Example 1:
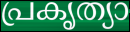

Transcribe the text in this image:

പ്രകൃത്യാ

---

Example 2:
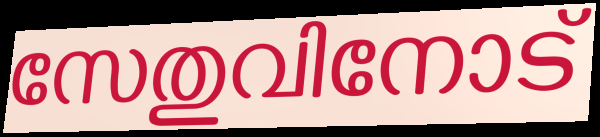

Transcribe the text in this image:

സേതുവിനോട്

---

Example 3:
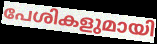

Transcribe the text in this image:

പേശികളുമായി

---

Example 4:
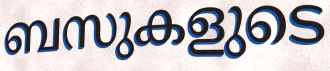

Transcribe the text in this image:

ബസുകളുടെ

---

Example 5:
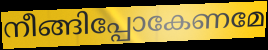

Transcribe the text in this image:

നീങ്ങിപ്പോകേണമേ